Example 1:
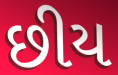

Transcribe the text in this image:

છીય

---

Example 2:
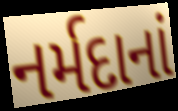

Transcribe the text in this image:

નર્મદાનાં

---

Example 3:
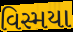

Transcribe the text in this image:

વિસ્મયા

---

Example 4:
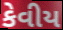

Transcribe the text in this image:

કેવીય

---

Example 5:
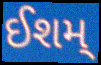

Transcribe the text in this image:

ઈશમ્